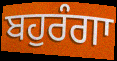
ਬਹੁਰੰਗਾ